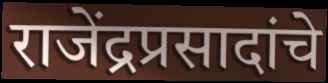
राजेंद्रप्रसादांचे